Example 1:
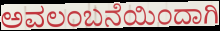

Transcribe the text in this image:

ಅವಲಂಬನೆಯಿಂದಾಗಿ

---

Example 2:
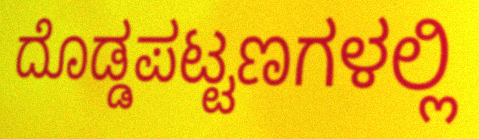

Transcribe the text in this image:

ದೊಡ್ಡಪಟ್ಟಣಗಳಲ್ಲಿ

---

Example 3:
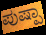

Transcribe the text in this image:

ಪುಷ್ಪಾ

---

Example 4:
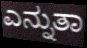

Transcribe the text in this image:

ಎನ್ನುತಾ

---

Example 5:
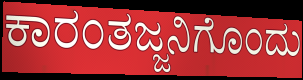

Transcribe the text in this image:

ಕಾರಂತಜ್ಜನಿಗೊಂದು